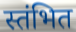
स्तंभित